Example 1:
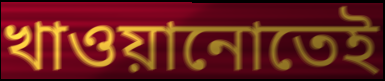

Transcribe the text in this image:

খাওয়ানোতেই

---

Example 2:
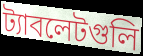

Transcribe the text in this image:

ট্যাবলেটগুলি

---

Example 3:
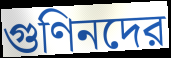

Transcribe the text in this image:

গুণিনদের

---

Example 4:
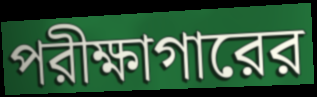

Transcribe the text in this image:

পরীক্ষাগারের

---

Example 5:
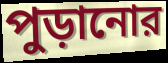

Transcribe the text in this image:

পুড়ানোর